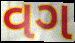
વગ